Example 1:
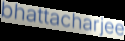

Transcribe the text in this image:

bhattacharjee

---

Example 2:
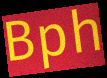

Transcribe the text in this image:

Bph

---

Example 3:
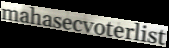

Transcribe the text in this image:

mahasecvoterlist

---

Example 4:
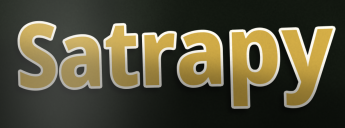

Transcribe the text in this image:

Satrapy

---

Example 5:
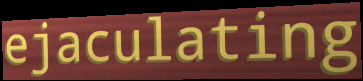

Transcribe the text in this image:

ejaculating